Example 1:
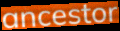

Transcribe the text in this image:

ancestor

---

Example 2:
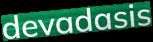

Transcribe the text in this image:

devadasis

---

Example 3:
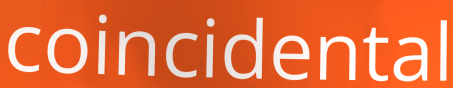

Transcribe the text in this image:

coincidental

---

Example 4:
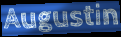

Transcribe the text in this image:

Augustin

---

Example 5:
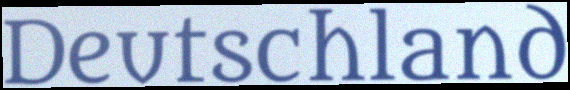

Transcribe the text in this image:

Deutschland